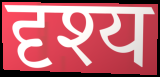
दृश्‍य